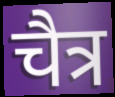
चैत्र